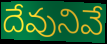
దేవునివే